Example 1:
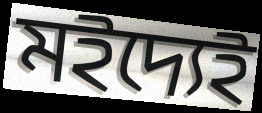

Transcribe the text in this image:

মইদ্যেই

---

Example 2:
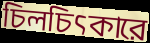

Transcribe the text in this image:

চিলচিৎকারে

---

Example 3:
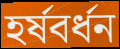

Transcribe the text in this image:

হর্ষবর্ধন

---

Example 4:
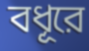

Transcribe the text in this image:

বধূরে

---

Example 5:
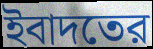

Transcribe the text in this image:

ইবাদতের